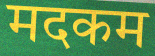
मदकम